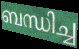
ബന്ധിച്ച